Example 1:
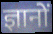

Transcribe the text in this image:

ज्ञानों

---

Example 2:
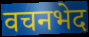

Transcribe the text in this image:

वचनभेद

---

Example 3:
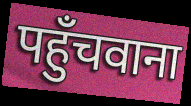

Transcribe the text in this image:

पहुँचवाना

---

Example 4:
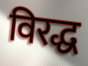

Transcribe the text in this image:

विरद्ध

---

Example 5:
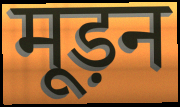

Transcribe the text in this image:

मूड़न